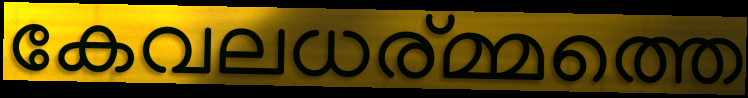
കേവലധര്മ്മത്തെ